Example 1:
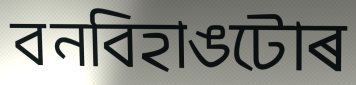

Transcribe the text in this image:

বনবিহাঙটোৰ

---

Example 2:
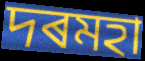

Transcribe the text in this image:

দৰমহা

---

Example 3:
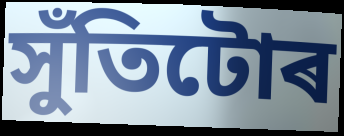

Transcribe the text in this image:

সুঁতিটোৰ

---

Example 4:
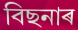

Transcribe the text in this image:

বিছনাৰ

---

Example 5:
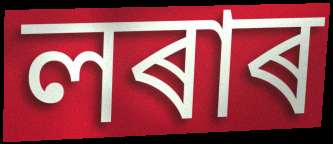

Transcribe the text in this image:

লৰাৰ